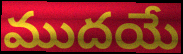
ముదయే